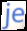
je